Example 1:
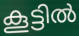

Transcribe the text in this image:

കൂട്ടിൽ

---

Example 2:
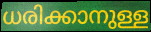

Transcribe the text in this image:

ധരിക്കാനുള്ള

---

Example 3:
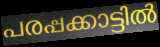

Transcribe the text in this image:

പരപ്പക്കാട്ടിൽ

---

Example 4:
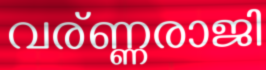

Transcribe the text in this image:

വര്ണ്ണരാജി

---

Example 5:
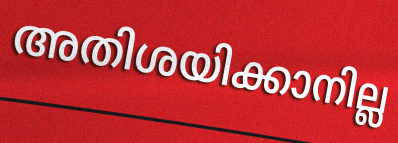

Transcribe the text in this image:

അതിശയിക്കാനില്ല